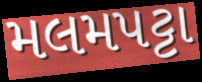
મલમપટ્ટા